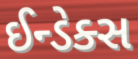
ઈન્ડેક્સ